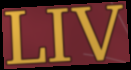
LIV